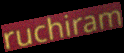
ruchiram